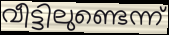
വീട്ടിലുണ്ടെന്ന്